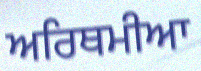
ਅਰਿਥਮੀਆ